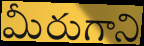
మీరుగాని